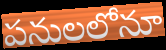
పనులలోనూ